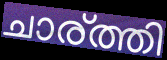
ചാര്ത്തി